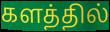
களத்தில்